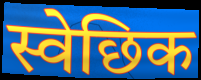
स्वेछिक